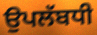
ਉਪਲੱਬਧੀ